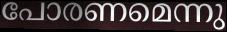
പോരണമെന്നു